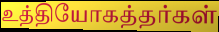
உத்தியோகத்தர்கள்